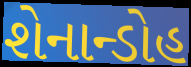
શેનાન્ડોહ